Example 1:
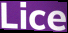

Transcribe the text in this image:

Lice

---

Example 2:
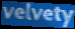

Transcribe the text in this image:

velvety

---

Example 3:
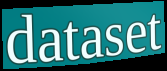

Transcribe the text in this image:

dataset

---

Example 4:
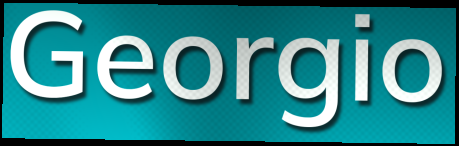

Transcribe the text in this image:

Georgio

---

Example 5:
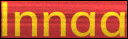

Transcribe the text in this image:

Innaa